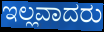
ಇಲ್ಲವಾದರು